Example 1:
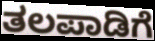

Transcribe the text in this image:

ತಲಪಾಡಿಗೆ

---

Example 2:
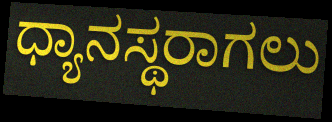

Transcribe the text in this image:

ಧ್ಯಾನಸ್ಥರಾಗಲು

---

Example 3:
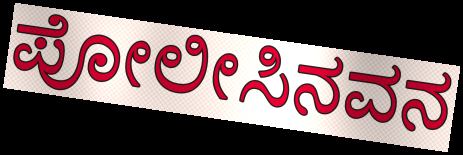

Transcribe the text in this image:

ಪೋಲೀಸಿನವನ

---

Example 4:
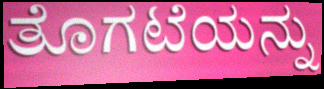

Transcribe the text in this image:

ತೊಗಟೆಯನ್ನು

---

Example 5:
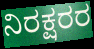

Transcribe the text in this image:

ನಿರಕ್ಷರರ